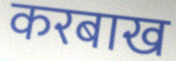
करबाख